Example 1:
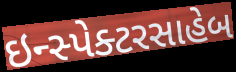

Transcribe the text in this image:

ઇન્સ્પેક્ટરસાહેબ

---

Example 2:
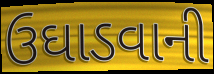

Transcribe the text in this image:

ઉઘાડવાની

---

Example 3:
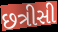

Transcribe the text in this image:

છત્રીસી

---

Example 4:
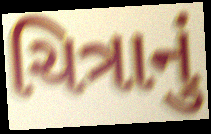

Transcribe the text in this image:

ચિત્રાનું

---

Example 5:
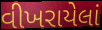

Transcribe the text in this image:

વીખરાયેલાં